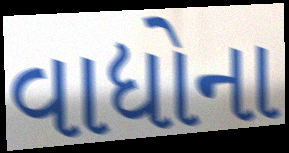
વાદ્યોના